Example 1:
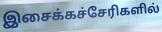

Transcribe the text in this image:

இசைக்கச்சேரிகளில்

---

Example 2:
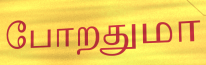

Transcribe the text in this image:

போறதுமா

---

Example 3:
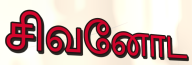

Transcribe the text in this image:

சிவனோட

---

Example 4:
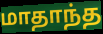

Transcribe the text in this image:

மாதாந்த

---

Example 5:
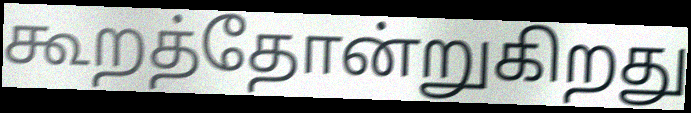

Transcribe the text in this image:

கூறத்தோன்றுகிறது